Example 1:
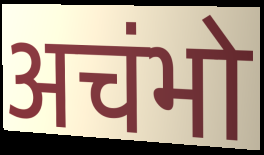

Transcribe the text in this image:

अचंभो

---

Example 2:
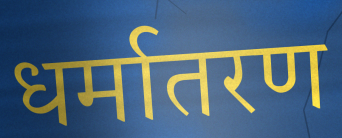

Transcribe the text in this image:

धर्मातरण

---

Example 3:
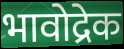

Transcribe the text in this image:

भावोद्रेक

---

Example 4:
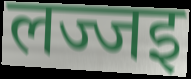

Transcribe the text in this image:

लज्जइ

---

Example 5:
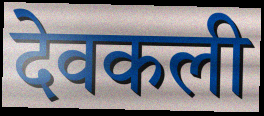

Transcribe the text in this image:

देवकली